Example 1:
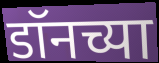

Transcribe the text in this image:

डॉनच्या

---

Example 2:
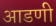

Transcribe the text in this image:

आडणी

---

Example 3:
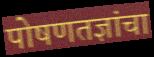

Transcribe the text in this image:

पोषणतज्ञांचा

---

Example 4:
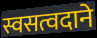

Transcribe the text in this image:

स्वसत्वदाने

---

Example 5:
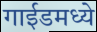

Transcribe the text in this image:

गाईडमध्ये